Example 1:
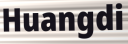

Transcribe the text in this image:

Huangdi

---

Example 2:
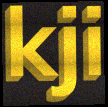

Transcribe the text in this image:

kji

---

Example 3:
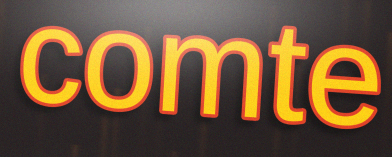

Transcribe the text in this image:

comte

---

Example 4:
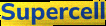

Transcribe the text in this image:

Supercell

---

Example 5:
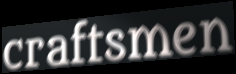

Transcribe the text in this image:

craftsmen